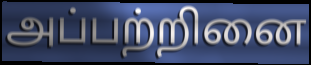
அப்பற்றினை